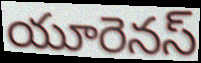
యూరెనస్